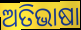
ଅତିଭାଷା